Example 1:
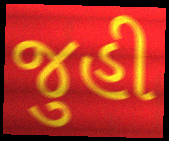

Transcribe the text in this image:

જુહી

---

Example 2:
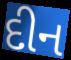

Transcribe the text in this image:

દીન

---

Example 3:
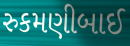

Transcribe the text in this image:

રુકમણીબાઈ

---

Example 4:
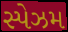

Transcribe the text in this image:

સ્પેઝમ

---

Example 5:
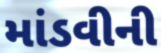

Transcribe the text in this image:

માંડવીની